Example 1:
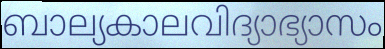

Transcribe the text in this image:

ബാല്യകാലവിദ്യാഭ്യാസം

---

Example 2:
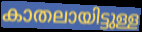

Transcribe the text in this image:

കാതലായിട്ടുള്ള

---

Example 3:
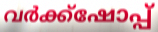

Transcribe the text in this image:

വർക്ക്ഷോപ്പ്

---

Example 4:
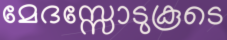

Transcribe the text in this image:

മേദസ്സോടുകൂടെ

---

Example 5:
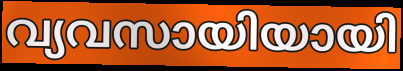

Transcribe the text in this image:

വ്യവസായിയായി